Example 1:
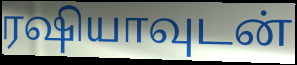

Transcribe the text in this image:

ரஷியாவுடன்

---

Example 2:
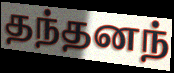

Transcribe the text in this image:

தந்தனந்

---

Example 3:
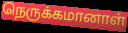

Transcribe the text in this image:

நெருக்கமானாள்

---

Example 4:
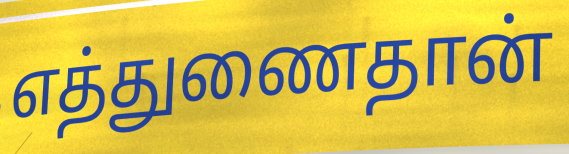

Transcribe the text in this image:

எத்துணைதான்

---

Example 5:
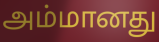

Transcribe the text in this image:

அம்மானது